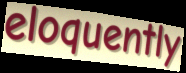
eloquently